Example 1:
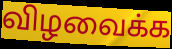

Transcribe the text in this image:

விழவைக்க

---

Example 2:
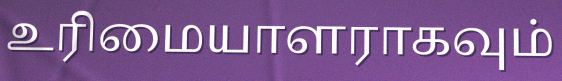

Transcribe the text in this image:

உரிமையாளராகவும்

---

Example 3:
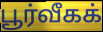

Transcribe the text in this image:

பூர்வீகக்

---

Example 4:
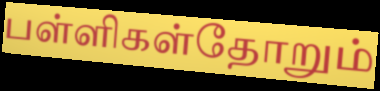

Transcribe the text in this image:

பள்ளிகள்தோறும்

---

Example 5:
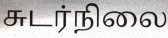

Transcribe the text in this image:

சுடர்நிலை